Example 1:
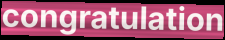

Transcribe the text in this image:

congratulation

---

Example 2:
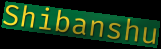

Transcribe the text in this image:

Shibanshu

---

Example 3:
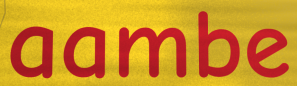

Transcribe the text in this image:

aambe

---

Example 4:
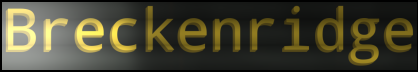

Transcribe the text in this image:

Breckenridge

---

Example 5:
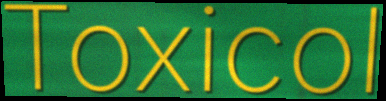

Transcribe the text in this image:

Toxicol